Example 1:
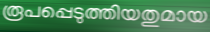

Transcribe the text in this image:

രൂപപ്പെടുത്തിയതുമായ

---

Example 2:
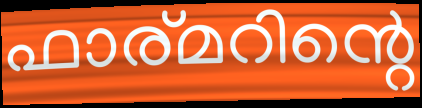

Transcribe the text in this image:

ഫാര്മറിന്റെ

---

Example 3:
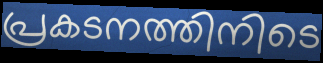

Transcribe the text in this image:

പ്രകടനത്തിനിടെ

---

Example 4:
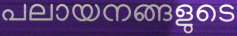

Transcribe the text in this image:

പലായനങ്ങളുടെ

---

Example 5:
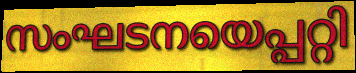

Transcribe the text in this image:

സംഘടനയെപ്പറ്റി